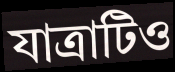
যাত্রাটিও